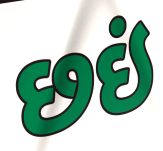
છઇં